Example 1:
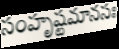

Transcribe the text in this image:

సంహృష్టమానసః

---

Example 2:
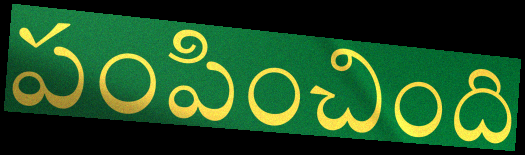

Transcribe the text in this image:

పంపించింది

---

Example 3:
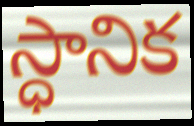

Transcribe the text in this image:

స్ధానిక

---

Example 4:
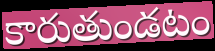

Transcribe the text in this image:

కారుతుండటం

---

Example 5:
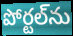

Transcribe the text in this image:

పోర్టల్‌ను